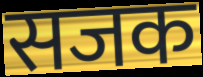
सजक